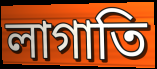
লাগাতি